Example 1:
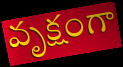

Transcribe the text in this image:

వృక్షంగా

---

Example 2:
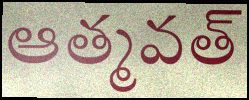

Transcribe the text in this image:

ఆత్మవత్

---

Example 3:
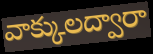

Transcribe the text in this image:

వాక్కులద్వారా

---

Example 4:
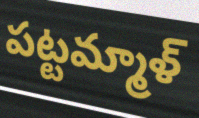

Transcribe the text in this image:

పట్టమ్మాళ్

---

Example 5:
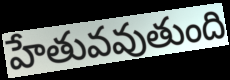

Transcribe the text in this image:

హేతువవుతుంది